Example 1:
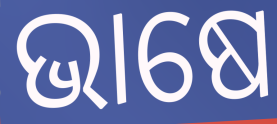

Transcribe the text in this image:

ଭାଷେ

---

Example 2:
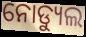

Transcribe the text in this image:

ନୋଡ୍ୟୁଲ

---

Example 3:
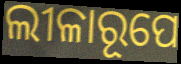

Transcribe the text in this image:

ଲୀଳାରୂପେ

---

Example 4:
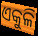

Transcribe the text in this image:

ଏକୁଳି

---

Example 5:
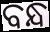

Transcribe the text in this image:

ବନ୍ଧ